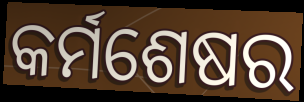
କର୍ମଶେଷର